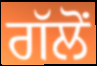
ਗੱਲੋਂ